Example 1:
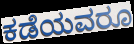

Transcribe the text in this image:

ಕಡೆಯವರೂ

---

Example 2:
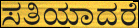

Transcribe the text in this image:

ಸತಿಯಾದರೆ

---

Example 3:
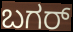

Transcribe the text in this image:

ಬಗರ್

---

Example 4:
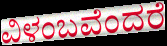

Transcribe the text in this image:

ವಿಳಂಬವೆಂದರೆ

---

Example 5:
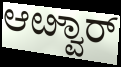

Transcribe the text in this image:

ಆೞ್ವಾರ್